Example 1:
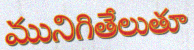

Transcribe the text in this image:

మునిగితేలుతూ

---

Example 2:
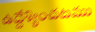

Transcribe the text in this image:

ఉద్దేశ్యించటము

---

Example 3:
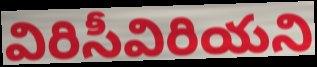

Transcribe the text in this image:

విరిసీవిరియని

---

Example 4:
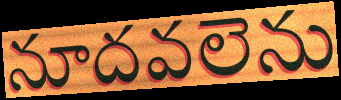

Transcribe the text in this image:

నూదవలెను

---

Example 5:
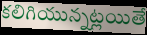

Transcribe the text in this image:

కలిగియున్నట్లయితే